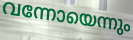
വന്നോയെന്നും